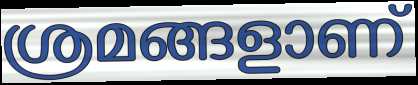
ശ്രമങ്ങളാണ്